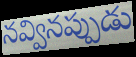
నవ్వినప్పుడు